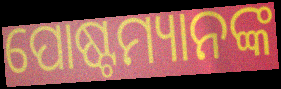
ପୋଷ୍ଟମ୍ୟାନଙ୍କ